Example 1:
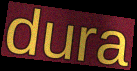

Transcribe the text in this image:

dura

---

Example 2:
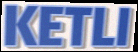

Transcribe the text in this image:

KETLI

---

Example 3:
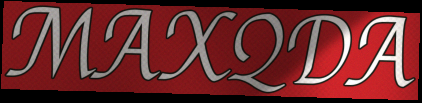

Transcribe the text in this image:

MAXQDA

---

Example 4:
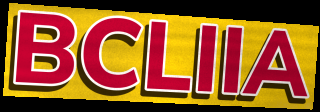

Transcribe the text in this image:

BCLIIA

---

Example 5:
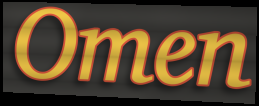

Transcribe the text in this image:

Omen